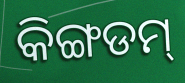
କିଙ୍ଗଡମ୍